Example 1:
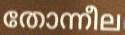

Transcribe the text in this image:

തോന്നീല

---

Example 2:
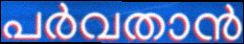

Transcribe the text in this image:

പർവതാൻ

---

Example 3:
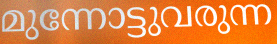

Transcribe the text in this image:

മുന്നോട്ടുവരുന്ന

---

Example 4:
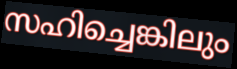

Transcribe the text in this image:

സഹിച്ചെങ്കിലും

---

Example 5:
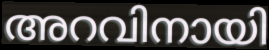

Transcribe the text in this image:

അറവിനായി